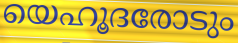
യെഹൂദരോടും